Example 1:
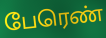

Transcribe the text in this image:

பேரெண்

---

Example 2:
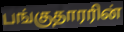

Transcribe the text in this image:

பங்குதாரரின்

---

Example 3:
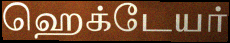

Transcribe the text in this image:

ஹெக்டேயர்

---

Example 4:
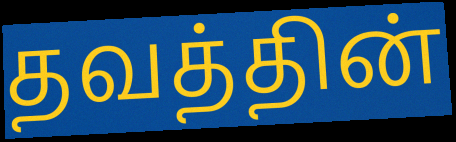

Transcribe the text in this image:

தவத்தின்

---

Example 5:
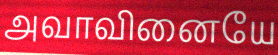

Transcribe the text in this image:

அவாவினையே